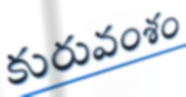
కురువంశం